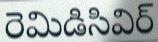
రెమిడిసివిర్